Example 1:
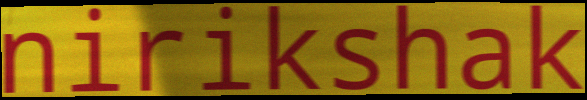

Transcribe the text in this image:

nirikshak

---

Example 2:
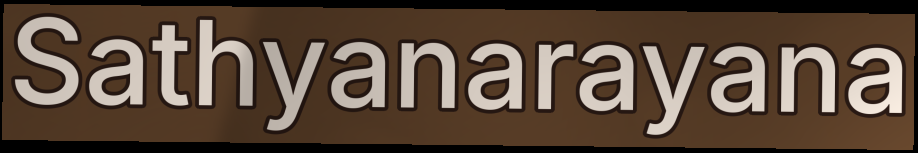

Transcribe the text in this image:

Sathyanarayana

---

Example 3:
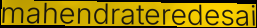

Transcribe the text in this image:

mahendrateredesai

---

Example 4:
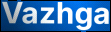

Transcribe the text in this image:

Vazhga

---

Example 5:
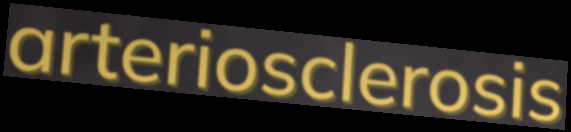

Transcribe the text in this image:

arteriosclerosis